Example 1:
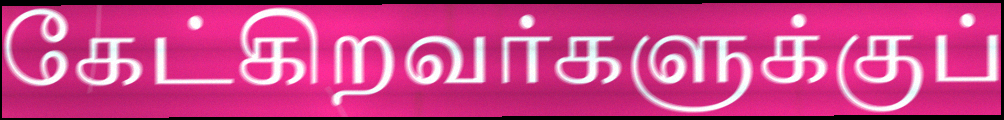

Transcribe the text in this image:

கேட்கிறவர்களுக்குப்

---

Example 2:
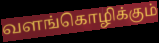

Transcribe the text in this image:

வளங்கொழிக்கும்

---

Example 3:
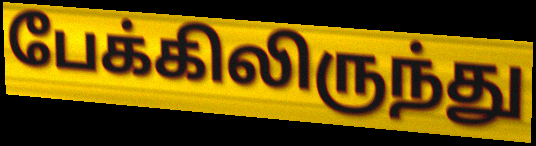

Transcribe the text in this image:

பேக்கிலிருந்து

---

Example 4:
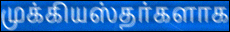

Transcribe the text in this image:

முக்கியஸ்தர்களாக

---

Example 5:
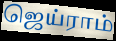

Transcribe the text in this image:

ஜெய்ராம்